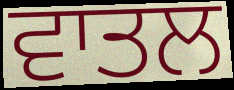
ਵਾਤਲ